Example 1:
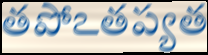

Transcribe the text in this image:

తపోఽతప్యత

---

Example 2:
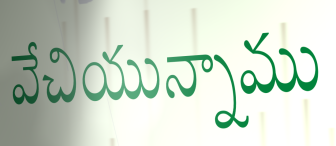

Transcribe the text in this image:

వేచియున్నాము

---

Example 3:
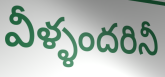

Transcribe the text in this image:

వీళ్ళందరినీ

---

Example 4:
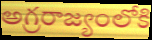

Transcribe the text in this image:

అగ్రరాజ్యంలోకి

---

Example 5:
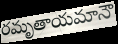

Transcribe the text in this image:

రమృతాయమానౌ